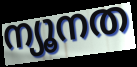
ന്യൂനത